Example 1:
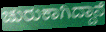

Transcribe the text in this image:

ಚುರುಕಾಗಿದ್ದಾನೆ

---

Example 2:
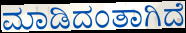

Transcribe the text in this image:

ಮಾಡಿದಂತಾಗಿದೆ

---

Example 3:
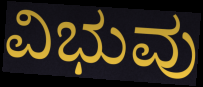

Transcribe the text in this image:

ವಿಭುವು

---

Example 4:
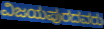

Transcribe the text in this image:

ವಿಜಯಪುರದವರು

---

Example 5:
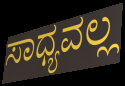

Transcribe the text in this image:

ಸಾಧ್ಯವಲ್ಲ